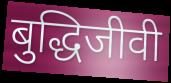
बुद्धिजीवी